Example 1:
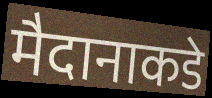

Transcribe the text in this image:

मैदानाकडे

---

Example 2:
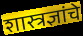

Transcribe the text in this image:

शास्त्रज्ञांचे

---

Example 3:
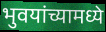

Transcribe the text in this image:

भुवयांच्यामध्ये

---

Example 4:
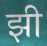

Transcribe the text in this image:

झी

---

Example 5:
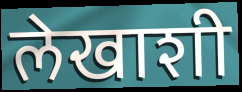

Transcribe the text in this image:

लेखाशी